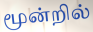
மூன்றில்